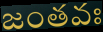
జంతవః